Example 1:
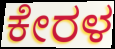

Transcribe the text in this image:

ಕೇರಳ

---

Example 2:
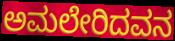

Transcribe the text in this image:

ಅಮಲೇರಿದವನ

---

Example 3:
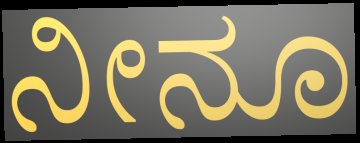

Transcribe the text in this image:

ನೀನೂ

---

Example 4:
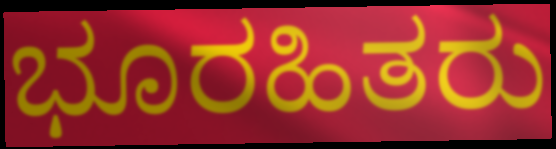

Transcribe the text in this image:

ಭೂರಹಿತರು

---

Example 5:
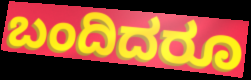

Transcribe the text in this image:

ಬಂದಿದರೂ